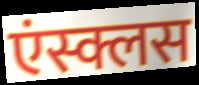
एंस्क्लस